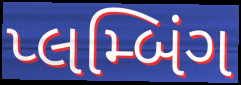
પ્લમ્બિંગ